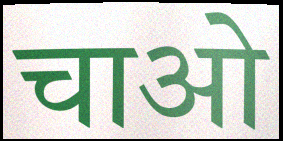
चाओ